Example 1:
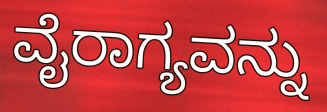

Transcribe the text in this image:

ವೈರಾಗ್ಯವನ್ನು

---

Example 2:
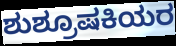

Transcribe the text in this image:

ಶುಶ್ರೂಷಕಿಯರ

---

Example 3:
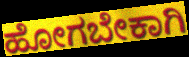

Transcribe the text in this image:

ಹೋಗಬೇಕಾಗಿ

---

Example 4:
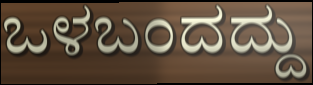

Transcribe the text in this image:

ಒಳಬಂದದ್ದು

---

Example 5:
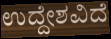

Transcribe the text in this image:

ಉದ್ದೇಶವಿದೆ